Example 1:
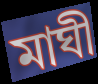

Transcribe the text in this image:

মাঘী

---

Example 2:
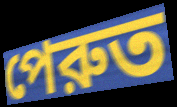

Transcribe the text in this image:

পেরুত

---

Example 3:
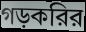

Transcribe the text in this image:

গড়করির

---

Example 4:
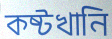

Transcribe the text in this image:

কষ্টখানি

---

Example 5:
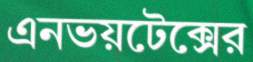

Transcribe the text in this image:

এনভয়টেক্সের